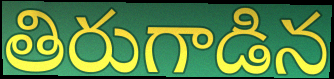
తిరుగాడిన